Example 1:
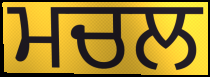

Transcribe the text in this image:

ਮਚਲ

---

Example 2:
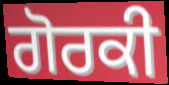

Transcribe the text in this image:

ਗੋਰਕੀ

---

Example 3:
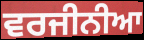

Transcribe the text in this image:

ਵਰਜੀਨੀਆ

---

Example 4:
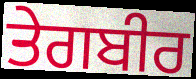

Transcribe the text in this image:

ਤੇਗਬੀਰ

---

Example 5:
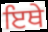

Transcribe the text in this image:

ਇਥੇ